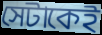
সেটাকেই